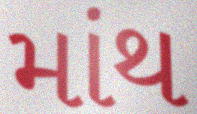
માંથ